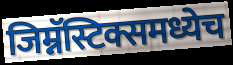
जिम्नॅस्टिक्समध्येच